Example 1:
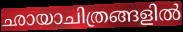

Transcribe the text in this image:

ഛായാചിത്രങ്ങളിൽ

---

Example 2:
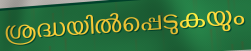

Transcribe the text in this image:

ശ്രദ്ധയിൽപ്പെടുകയും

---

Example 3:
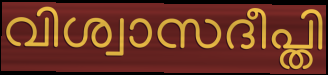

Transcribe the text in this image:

വിശ്വാസദീപ്തി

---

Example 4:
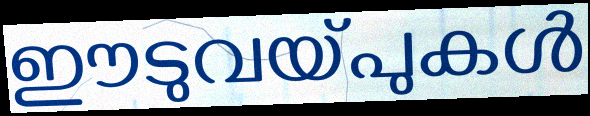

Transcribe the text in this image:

ഈടുവയ്പുകൾ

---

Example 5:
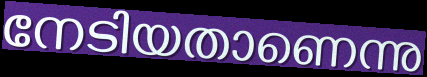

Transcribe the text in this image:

നേടിയതാണെന്നു